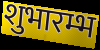
शुभारम्भ